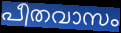
പീതവാസം